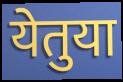
येतुया